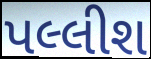
પલ્લીશ